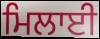
ਮਿਲਾਈ